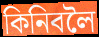
কিনিবলৈ